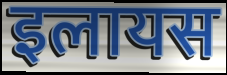
इलायस